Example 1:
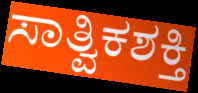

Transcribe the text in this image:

ಸಾತ್ವಿಕಶಕ್ತಿ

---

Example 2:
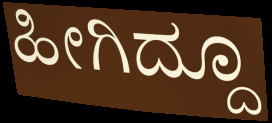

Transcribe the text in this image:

ಹೀಗಿದ್ದೂ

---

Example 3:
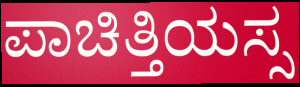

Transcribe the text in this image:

ಪಾಚಿತ್ತಿಯಸ್ಸ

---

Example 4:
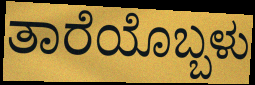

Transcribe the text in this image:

ತಾರೆಯೊಬ್ಬಳು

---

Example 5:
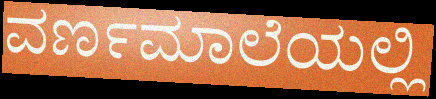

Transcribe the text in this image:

ವರ್ಣಮಾಲೆಯಲ್ಲಿ